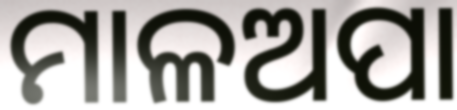
ମାଳଅପା